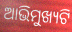
ଆଭିମୁଖ୍ୟଟି